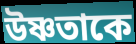
উষ্ণতাকে